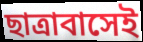
ছাত্রাবাসেই